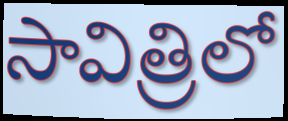
సావిత్రిలో